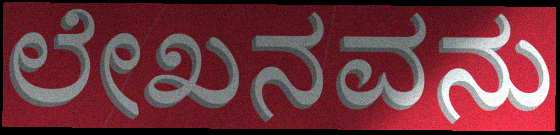
ಲೇಖನವನು